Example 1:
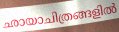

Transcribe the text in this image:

ഛായാചിത്രങ്ങളിൽ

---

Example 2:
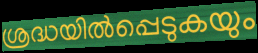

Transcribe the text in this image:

ശ്രദ്ധയിൽപ്പെടുകയും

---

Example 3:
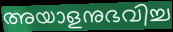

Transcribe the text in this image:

അയാളനുഭവിച്ച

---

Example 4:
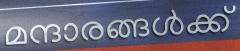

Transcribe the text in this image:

മന്ദാരങ്ങൾക്ക്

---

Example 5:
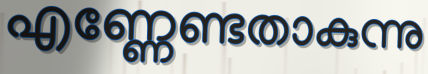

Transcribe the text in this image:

എണ്ണേണ്ടതാകുന്നു